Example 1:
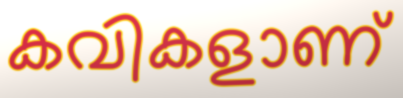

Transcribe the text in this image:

കവികളാണ്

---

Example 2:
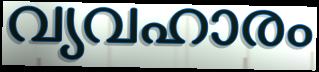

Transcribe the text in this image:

വ്യവഹാരം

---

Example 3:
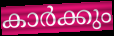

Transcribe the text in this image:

കാർക്കും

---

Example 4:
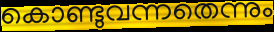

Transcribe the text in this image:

കൊണ്ടുവന്നതെന്നും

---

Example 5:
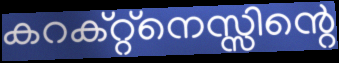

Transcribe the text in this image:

കറക്റ്റ്നെസ്സിന്റെ